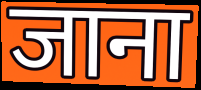
जाना